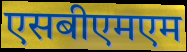
एसबीएमएम